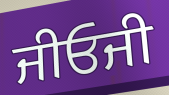
ਜੀਓਜੀ